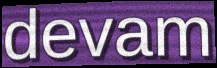
devam